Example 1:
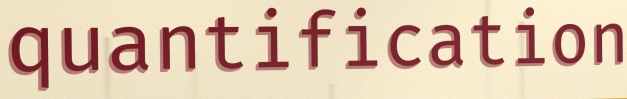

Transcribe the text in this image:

quantification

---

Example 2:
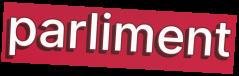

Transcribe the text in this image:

parliment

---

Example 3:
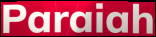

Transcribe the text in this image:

Paraiah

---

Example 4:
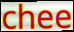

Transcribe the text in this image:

chee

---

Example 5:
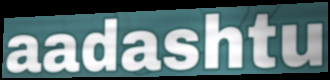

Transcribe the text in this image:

aadashtu